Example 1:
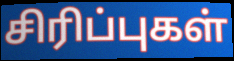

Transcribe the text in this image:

சிரிப்புகள்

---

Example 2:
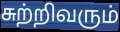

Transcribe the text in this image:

சுற்றிவரும்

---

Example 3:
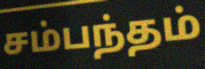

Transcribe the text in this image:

சம்பந்தம்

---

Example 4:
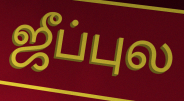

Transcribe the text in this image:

ஜீப்புல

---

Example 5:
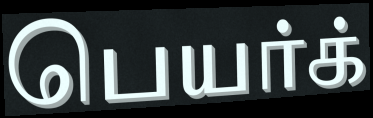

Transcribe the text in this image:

பெயர்க்